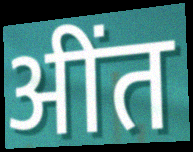
अींत